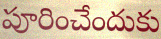
పూరించేందుకు